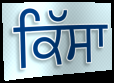
ਕਿੱਸਾ